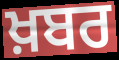
ਖ਼ਬਰ